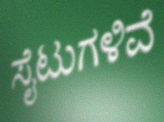
ಸೈಟುಗಳಿವೆ